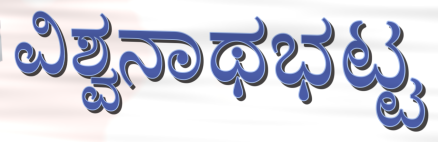
ವಿಶ್ವನಾಥಭಟ್ಟ